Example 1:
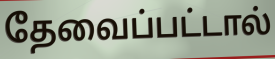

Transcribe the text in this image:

தேவைப்பட்டால்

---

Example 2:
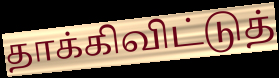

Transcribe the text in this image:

தாக்கிவிட்டுத்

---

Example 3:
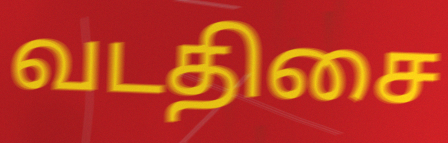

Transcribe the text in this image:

வடதிசை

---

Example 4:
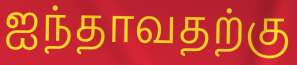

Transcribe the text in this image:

ஐந்தாவதற்கு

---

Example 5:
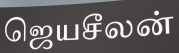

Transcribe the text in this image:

ஜெயசீலன்